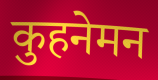
कुहनेमन